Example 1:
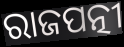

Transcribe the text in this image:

ରାଜପତ୍ନୀ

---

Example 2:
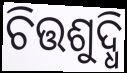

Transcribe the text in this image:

ଚିତ୍ତଶୁଦ୍ଧି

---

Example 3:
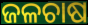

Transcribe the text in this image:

ଜଳଚାଷ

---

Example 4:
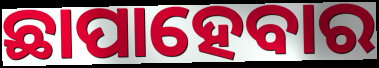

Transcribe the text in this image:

ଛାପାହେବାର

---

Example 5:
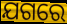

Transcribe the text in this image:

ଯଗରେ